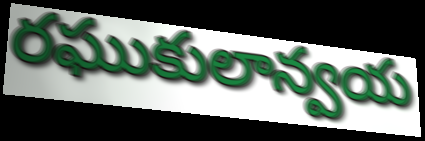
రఘుకులాన్వయ